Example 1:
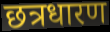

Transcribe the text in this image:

छत्रधारण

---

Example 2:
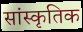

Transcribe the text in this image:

सांस्कृतिक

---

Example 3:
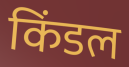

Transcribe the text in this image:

किंडल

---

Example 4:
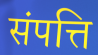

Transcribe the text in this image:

संपत्ति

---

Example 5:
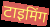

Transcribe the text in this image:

टाइमिंग